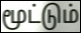
மூட்டும்